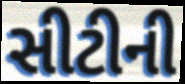
સીટીની